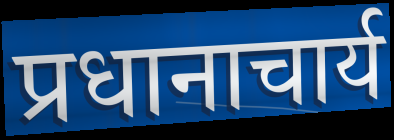
प्रधानाचार्य